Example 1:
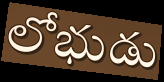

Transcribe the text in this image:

లోభుడు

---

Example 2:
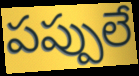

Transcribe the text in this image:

పప్పులే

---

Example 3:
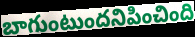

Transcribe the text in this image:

బాగుంటుందనిపించింది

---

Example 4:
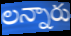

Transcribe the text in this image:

లన్నారు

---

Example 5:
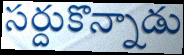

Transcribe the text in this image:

సర్దుకొన్నాడు